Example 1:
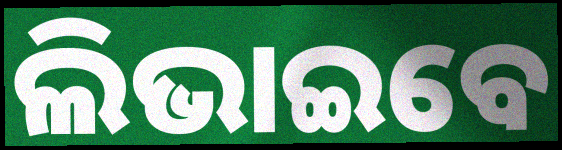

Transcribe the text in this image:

ଲିଭାଇବେ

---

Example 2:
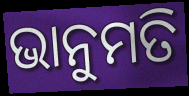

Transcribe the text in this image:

ଭାନୁମତି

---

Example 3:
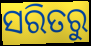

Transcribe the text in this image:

ସରିତରୁ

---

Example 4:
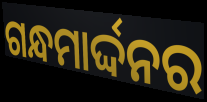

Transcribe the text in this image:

ଗନ୍ଧମାର୍ଦ୍ଦନର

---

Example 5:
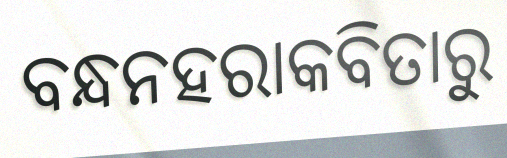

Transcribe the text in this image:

ବନ୍ଧନହରାକବିତାରୁ